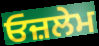
ਓਜ਼ਲੇਮ